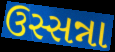
ઉસ્સન્ના